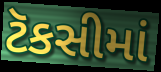
ટૅકસીમાં